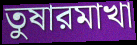
তুষারমাখা